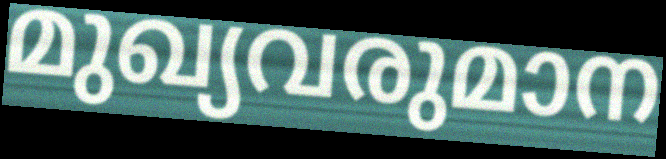
മുഖ്യവരുമാന